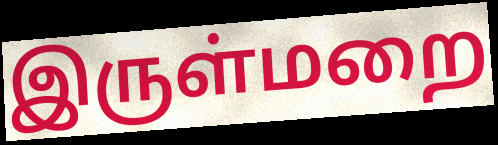
இருள்மறை